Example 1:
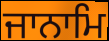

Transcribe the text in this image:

ਜਾਨਾਮਿ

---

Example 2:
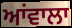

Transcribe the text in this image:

ਆਂਵਾਲਾ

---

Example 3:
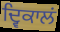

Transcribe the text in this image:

ਦ੍ਵਿਕਾਲਂ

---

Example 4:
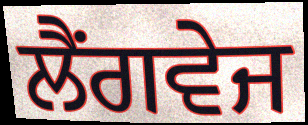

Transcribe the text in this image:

ਲੈਂਗਵੇਜ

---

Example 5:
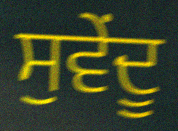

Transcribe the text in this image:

ਸੁਵੇਂਦੂ